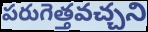
పరుగెత్తవచ్చని